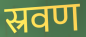
स्रवण